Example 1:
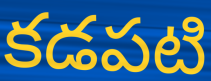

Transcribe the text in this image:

కడపటి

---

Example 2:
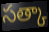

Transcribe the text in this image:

సత్కా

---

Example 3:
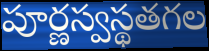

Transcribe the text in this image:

పూర్ణస్వస్థతగల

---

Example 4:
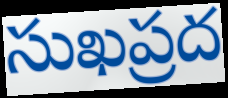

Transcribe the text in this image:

సుఖప్రద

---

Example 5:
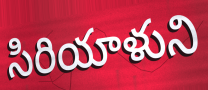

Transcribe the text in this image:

సిరియాళుని